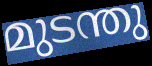
മുടന്തു